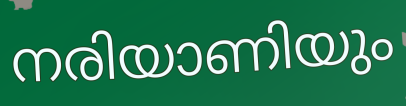
നരിയാണിയും